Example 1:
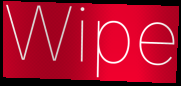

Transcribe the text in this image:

Wipe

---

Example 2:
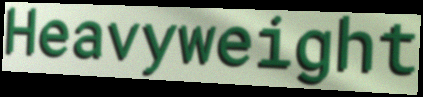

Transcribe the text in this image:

Heavyweight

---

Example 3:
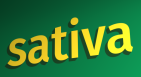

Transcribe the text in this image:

sativa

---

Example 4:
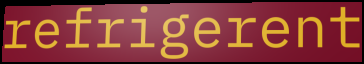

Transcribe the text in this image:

refrigerent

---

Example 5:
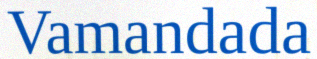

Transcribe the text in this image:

Vamandada